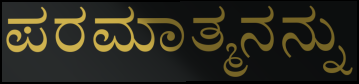
ಪರಮಾತ್ಮನನ್ನು